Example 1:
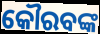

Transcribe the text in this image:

କୌରବଙ୍କ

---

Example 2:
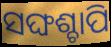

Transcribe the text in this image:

ସଙ୍ଘଶ୍ଚାପି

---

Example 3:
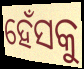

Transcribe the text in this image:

ହେଁସକୁ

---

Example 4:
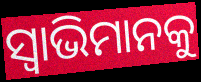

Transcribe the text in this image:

ସ୍ୱାଭିମାନକୁ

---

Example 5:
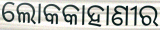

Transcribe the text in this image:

ଲୋକକାହାଣୀର